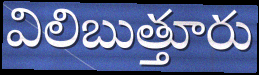
విలిబుత్తూరు